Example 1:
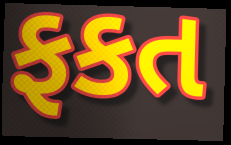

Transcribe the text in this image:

ફકત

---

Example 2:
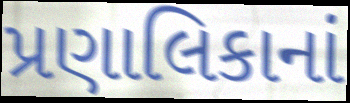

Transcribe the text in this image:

પ્રણાલિકાનાં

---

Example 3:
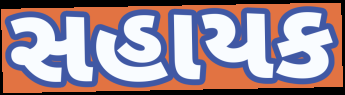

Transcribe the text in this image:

સહાયક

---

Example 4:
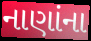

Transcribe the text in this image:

નાણાંના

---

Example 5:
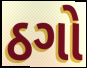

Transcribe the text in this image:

ઠગો